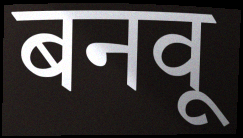
बनवू